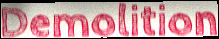
Demolition